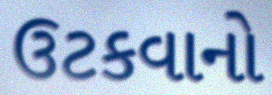
ઉટકવાનો